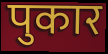
पुकार